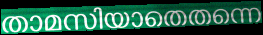
താമസിയാതെതന്നെ